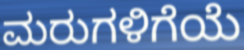
ಮರುಗಳಿಗೆಯೆ